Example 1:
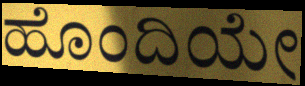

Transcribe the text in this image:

ಹೊಂದಿಯೇ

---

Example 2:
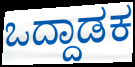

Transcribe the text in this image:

ಒದ್ದಾಡಕ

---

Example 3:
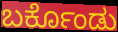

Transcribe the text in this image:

ಬರ್ಕೊಂಡು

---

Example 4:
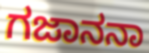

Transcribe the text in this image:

ಗಜಾನನಾ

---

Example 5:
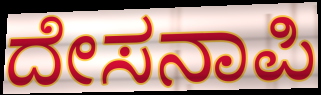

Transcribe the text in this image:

ದೇಸನಾಪಿ